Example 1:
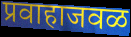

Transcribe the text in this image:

प्रवाहाजवळ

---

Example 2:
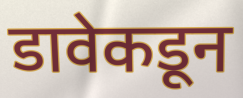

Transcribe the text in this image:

डावेकडून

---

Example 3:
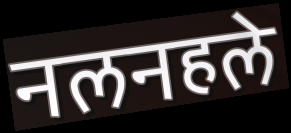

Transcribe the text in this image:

नलनहले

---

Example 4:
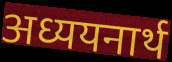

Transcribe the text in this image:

अध्ययनार्थ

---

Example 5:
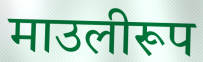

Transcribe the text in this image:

माउलीरूप